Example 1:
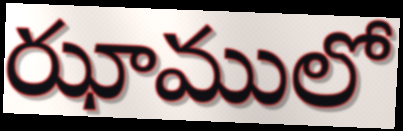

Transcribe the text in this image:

ఝాములో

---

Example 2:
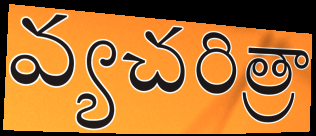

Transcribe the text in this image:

వ్యచరిత్రా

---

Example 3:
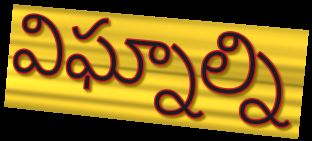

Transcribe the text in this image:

విఘ్నాల్ని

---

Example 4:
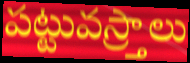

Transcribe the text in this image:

పట్టువస్ర్తాలు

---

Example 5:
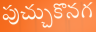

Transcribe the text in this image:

పుచ్చుకొనగ